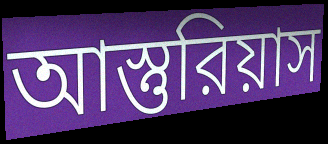
আস্তুরিয়াস